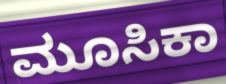
ಮೂಸಿಕಾ